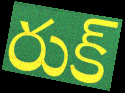
రుక్